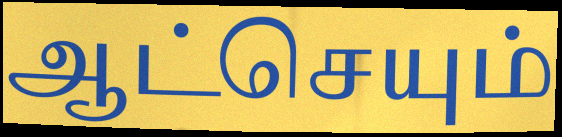
ஆட்செயும்